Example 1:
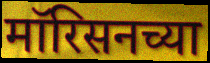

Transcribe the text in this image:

मॉरिसनच्या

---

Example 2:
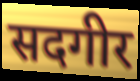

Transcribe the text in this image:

सदगीर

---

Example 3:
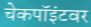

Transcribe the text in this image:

चेकपॉइंटवर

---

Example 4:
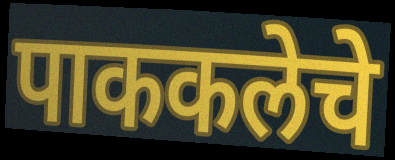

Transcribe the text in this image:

पाककलेचे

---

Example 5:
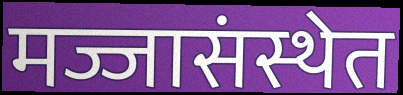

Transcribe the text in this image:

मज्जासंस्थेत